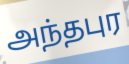
அந்தபுர